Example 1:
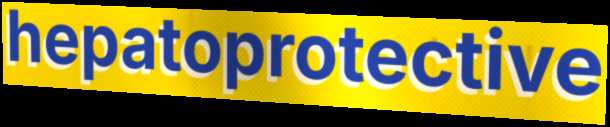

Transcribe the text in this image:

hepatoprotective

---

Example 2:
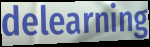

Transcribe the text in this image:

delearning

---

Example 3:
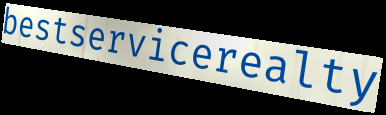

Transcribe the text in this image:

bestservicerealty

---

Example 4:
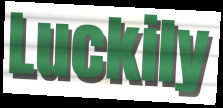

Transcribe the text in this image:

Luckily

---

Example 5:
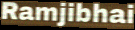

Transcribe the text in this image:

Ramjibhai